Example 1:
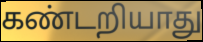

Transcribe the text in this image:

கண்டறியாது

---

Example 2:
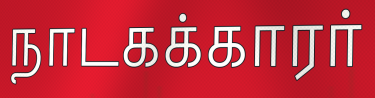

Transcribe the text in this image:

நாடகக்காரர்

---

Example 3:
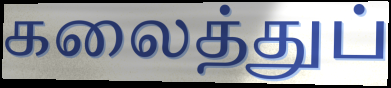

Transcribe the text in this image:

கலைத்துப்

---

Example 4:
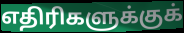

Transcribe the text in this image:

எதிரிகளுக்குக்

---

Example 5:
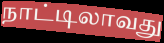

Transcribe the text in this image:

நாட்டிலாவது